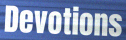
Devotions